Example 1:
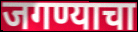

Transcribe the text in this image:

जगण्याचा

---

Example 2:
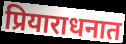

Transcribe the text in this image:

प्रियाराधनात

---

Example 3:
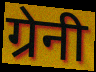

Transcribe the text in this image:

ग्रेनी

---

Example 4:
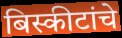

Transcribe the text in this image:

बिस्कीटांचे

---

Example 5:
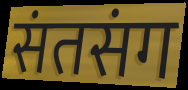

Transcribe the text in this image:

संतसंग